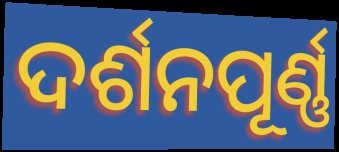
ଦର୍ଶନପୂର୍ଣ୍ଣ